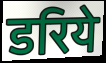
डरिये